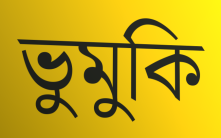
ভুমুকি